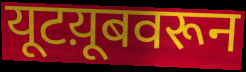
यूटय़ूबवरून